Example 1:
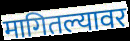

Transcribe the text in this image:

मागितल्यावर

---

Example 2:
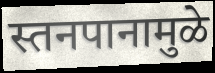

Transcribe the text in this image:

स्तनपानामुळे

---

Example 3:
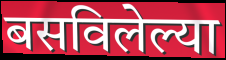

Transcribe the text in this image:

बसविलेल्या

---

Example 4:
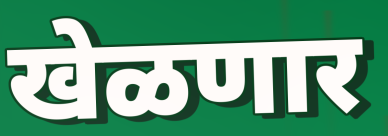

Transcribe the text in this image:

खेळणार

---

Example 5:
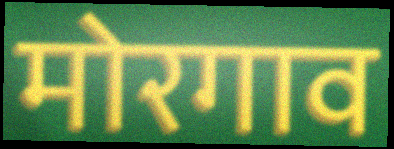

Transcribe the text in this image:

मोरगाव